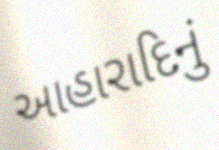
આહારાદિનું